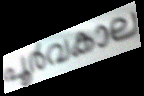
പൂർവകാല